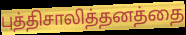
புத்திசாலித்தனத்தை